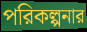
পরিকল্পনার